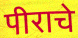
पीराचे